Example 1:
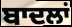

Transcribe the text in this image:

ਬਾਦਲਾਂ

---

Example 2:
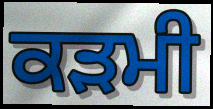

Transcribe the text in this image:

ਕੜਮੀ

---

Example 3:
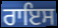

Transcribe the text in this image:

ਰਾਇਸ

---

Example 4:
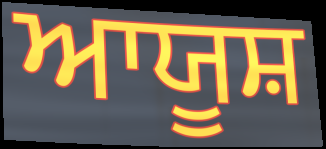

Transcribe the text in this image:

ਆਯੂਸ਼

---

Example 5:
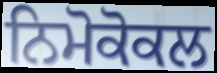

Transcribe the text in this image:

ਨਿਮੋਕੋਕਲ